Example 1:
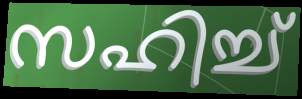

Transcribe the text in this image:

സഹിച്ച്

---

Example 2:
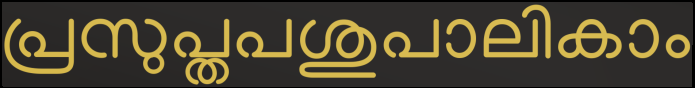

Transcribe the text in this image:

പ്രസുപ്തപശുപാലികാം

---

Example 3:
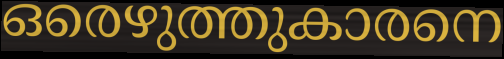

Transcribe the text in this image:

ഒരെഴുത്തുകാരനെ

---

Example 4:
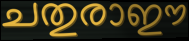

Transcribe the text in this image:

ചതുരാഈ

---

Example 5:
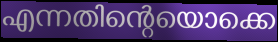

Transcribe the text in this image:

എന്നതിന്റെയൊക്കെ